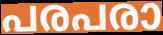
പരപരാ